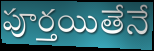
పూర్తయితేనే